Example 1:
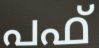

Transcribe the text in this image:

പഫ്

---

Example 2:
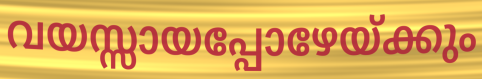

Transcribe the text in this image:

വയസ്സായപ്പോഴേയ്ക്കും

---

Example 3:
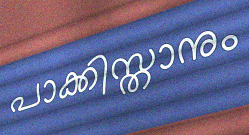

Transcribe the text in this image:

പാക്കിസ്താനും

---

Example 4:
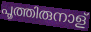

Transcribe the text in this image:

പൂത്തിരുനാള്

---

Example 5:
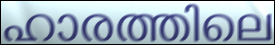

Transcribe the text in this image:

ഹാരത്തിലെ